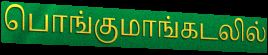
பொங்குமாங்கடலில்